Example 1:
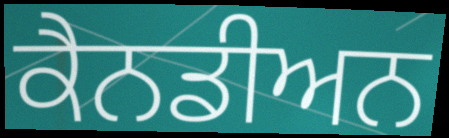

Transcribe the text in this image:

ਕੈਨਡੀਅਨ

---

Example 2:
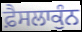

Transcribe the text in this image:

ਫ਼ੈਸਲਾਕੁੰਨ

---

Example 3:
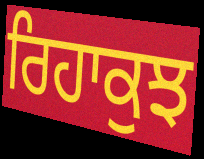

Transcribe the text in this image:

ਰਿਹਾਕੁਝ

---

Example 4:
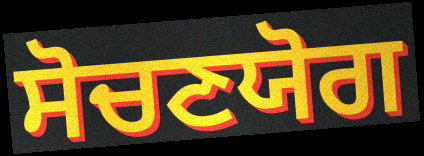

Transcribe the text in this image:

ਸੋਚਣਯੋਗ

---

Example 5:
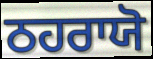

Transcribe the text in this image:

ਠਹਰਾਯੋ